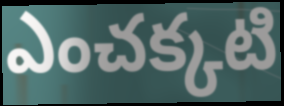
ఎంచక్కటి